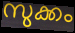
സുക്കം